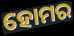
ହୋମର